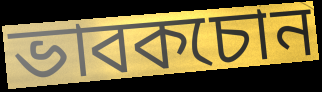
ভাবকচোন